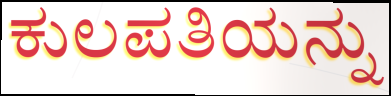
ಕುಲಪತಿಯನ್ನು